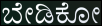
ಬೇಡಿಕೋ